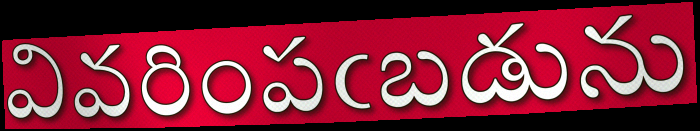
వివరింపఁబడును